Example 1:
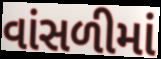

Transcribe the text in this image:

વાંસળીમાં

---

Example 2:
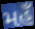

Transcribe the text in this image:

મહઁ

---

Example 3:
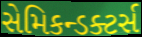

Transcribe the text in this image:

સેમિકન્ડક્ટર્સ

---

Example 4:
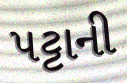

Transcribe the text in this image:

પટ્ટાની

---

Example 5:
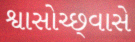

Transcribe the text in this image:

શ્વાસોચ્છ્‍વાસે